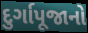
દુર્ગાપૂજાનો